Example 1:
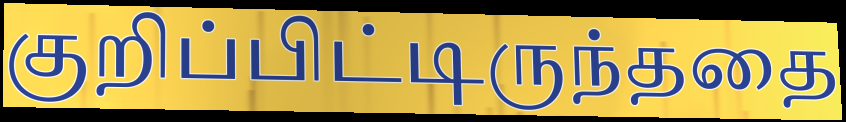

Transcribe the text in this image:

குறிப்பிட்டிருந்ததை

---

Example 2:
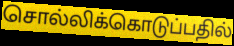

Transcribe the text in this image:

சொல்லிக்கொடுப்பதில்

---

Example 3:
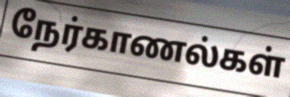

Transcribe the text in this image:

நேர்காணல்கள்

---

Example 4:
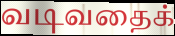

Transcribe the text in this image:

வடிவதைக்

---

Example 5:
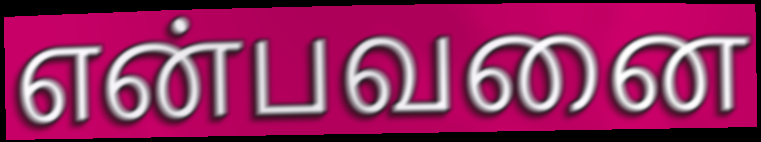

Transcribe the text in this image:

என்பவனை